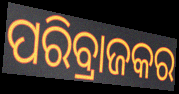
ପରିବ୍ରାଜକର